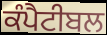
ਕੰਪੈਟੀਬਲ